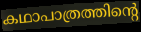
കഥാപാത്രത്തിന്റെ